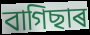
বাগিছাৰ